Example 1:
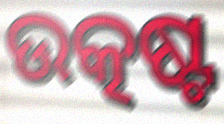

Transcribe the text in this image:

ଉତ୍କଷ୍ଟ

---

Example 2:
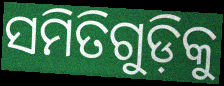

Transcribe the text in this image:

ସମିତିଗୁଡ଼ିକୁ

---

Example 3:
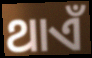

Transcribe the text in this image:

ଥାଏଁ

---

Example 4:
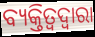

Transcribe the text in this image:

ବ୍ୟକ୍ତିତ୍ୱଦ୍ୱାରା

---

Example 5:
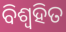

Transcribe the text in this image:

ବିଶ୍ଵହିତ